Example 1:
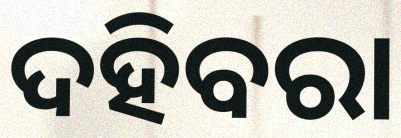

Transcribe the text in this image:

ଦହିବରା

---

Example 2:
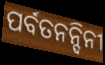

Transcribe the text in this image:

ପର୍ବତନନ୍ଦିନୀ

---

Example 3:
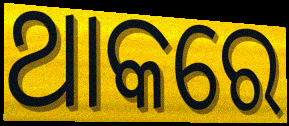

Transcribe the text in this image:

ଥାକରେ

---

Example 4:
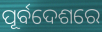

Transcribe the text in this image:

ପୂର୍ବଦେଶରେ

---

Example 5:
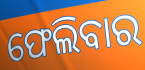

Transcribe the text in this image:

ଫେଲିବାର